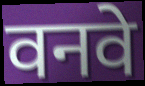
वनवे